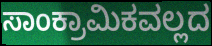
ಸಾಂಕ್ರಾಮಿಕವಲ್ಲದ